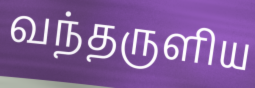
வந்தருளிய